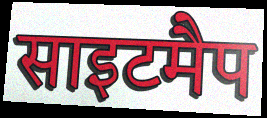
साइटमैप